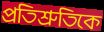
প্রতিশ্রুতিকে